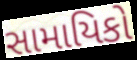
સામાયિકો